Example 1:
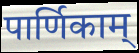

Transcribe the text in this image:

पार्णिकाम्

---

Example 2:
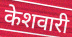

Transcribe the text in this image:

केशवारी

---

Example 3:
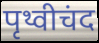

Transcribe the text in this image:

पृथ्वीचंद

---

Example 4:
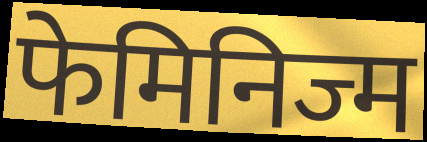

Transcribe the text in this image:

फेमिनिज्‍म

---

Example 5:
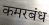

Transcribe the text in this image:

कमरबंध